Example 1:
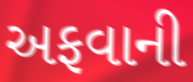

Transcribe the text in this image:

અફવાની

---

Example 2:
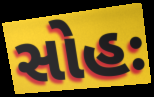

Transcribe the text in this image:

સોહઃ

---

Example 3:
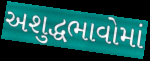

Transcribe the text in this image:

અશુદ્ધભાવોમાં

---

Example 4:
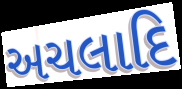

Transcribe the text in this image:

અચલાદિ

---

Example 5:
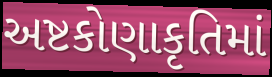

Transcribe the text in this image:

અષ્ટકોણાકૃતિમાં